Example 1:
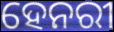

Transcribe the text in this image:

ହେନରୀ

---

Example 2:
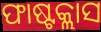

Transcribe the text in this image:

ଫାଷ୍ଟକ୍ଲାସ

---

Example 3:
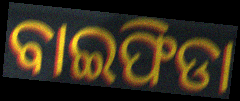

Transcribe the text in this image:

ବାଇଫିଡା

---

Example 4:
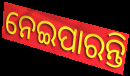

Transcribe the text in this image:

ନେଇପାରନ୍ତି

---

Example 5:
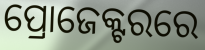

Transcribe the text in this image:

ପ୍ରୋଜେକ୍ଟରରେ